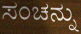
ಸಂಚನ್ನು